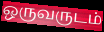
ஒருவருடம்